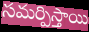
సమర్పిస్తాయి